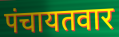
पंचायतवार